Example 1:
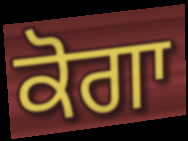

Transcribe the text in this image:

ਕੋਗਾ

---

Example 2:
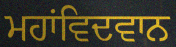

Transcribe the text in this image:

ਮਹਾਂਵਿਦਵਾਨ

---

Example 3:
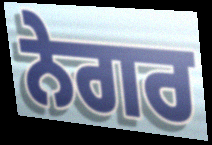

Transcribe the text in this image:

ਨੇਗਰ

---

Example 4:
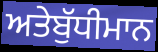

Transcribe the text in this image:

ਅਤੇਬੁੱਧੀਮਾਨ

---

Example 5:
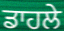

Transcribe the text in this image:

ਡਾਹਲੇ